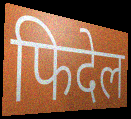
फिदेल